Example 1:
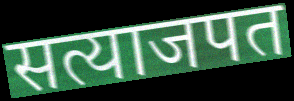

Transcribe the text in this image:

सत्याजपत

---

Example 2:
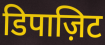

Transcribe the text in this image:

डिपाज़िट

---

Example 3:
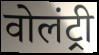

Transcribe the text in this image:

वोलंट्री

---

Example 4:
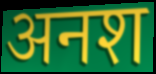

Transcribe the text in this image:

अनश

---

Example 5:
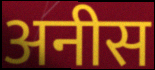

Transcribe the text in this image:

अनीस